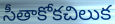
సీతాకోకచిలుక